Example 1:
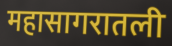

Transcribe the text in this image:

महासागरातली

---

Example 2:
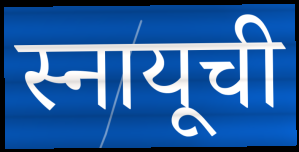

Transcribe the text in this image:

स्नायूची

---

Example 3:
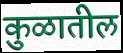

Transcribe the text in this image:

कुळातील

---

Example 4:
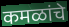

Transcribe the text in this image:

कमळांचे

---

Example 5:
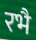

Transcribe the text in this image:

रभै